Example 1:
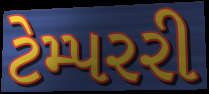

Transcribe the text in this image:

ટેમ્પરરી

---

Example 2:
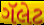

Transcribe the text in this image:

ગૅલેટ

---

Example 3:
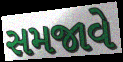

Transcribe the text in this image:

સમજાવે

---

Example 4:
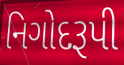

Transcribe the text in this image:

નિગોદરૂપી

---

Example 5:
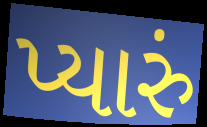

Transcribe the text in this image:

પ્યારું